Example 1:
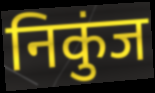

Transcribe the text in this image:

निकुंज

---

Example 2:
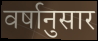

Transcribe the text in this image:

वर्षानुसार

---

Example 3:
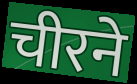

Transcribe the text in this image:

चीरने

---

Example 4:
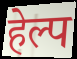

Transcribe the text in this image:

हेल्प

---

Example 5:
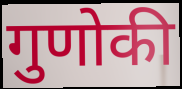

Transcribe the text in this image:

गुणोकी